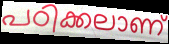
പഠിക്കലാണ്